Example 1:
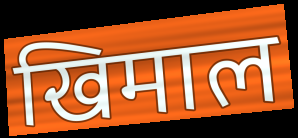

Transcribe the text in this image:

खिमाल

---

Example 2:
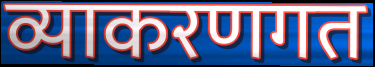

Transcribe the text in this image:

व्याकरणगत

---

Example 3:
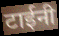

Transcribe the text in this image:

टाईनी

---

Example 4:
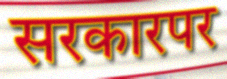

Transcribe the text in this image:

सरकारपर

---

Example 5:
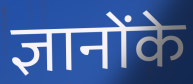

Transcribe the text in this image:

ज्ञानोंके